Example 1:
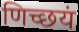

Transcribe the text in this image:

णिच्छयं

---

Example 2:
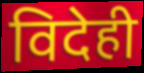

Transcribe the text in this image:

विदेही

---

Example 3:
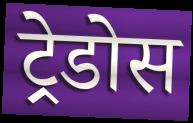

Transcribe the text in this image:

ट्रेडोस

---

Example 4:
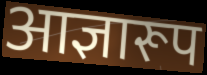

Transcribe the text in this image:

आज्ञारूप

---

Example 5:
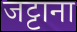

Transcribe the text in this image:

जट्टाना